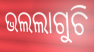
ଭଲଲାଗୁଚି